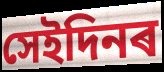
সেইদিনৰ